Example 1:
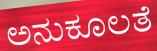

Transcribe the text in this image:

ಅನುಕೂಲತೆ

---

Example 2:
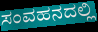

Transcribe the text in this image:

ಸಂವಹನದಲ್ಲಿ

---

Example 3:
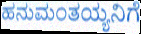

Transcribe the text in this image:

ಹನುಮಂತಯ್ಯನಿಗೆ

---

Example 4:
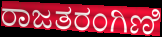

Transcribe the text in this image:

ರಾಜತರಂಗಿಣಿ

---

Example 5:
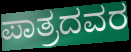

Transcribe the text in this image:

ಪಾತ್ರದವರ